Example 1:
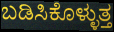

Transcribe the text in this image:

ಬಡಿಸಿಕೊಳ್ಳುತ್ತ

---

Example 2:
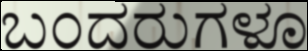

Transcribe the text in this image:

ಬಂದರುಗಳೂ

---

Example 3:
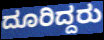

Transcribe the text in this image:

ದೂರಿದ್ದರು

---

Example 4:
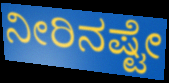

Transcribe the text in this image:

ನೀರಿನಷ್ಟೇ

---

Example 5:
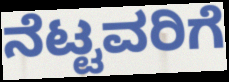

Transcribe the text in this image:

ನೆಟ್ಟವರಿಗೆ